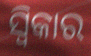
ସ୍ୱିକାର